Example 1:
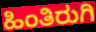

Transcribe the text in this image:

ಹಿಂತಿರುಗಿ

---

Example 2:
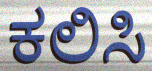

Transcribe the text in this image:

ಕಲಿಸಿ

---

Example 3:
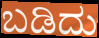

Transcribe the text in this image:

ಬಡಿದು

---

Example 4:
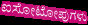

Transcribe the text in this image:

ಐಸೋಟೋಪುಗಳು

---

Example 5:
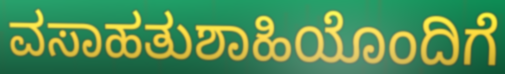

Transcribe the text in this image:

ವಸಾಹತುಶಾಹಿಯೊಂದಿಗೆ